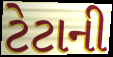
ટેટાની